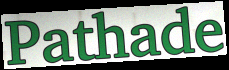
Pathade